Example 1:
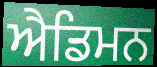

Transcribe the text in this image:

ਐਡਿਮਨ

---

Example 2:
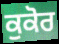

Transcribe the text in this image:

ਕੁਕੋਰ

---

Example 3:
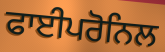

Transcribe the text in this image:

ਫਾਈਪਰੋਨਿਲ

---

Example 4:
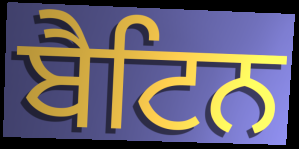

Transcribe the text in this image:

ਬੈਟਿਨ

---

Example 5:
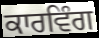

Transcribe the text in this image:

ਕਾਰਵਿੰਗ